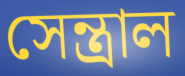
সেন্ত্রাল